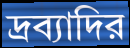
দ্রব্যাদির